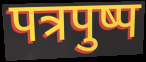
पत्रपुष्प